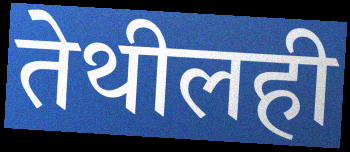
तेथीलही